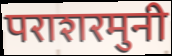
पराशरमुनी